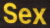
Sex